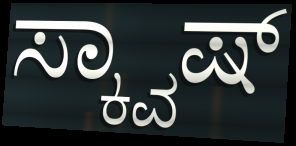
ಸ್ಕ್ವಾಷ್